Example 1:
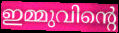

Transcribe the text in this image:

ഇമ്മുവിന്റെ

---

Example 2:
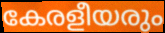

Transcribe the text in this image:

കേരളീയരും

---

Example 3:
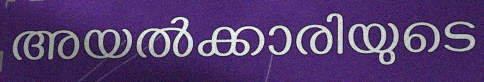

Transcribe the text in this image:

അയൽക്കാരിയുടെ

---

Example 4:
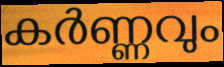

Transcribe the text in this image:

കർണ്ണവും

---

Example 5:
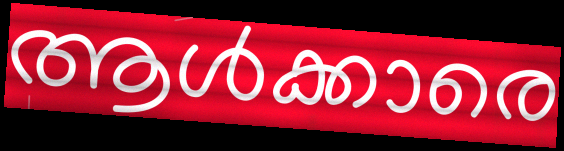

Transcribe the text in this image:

ആൾക്കാരെ